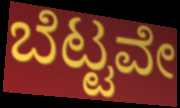
ಬೆಟ್ಟವೇ